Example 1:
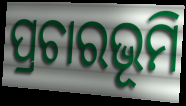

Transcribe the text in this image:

ପ୍ରଚାରଭୂମି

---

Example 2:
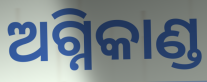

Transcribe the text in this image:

ଅଗ୍ନିକାଣ୍ଡ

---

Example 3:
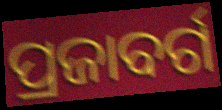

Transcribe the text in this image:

ପ୍ରଜାବର୍ଗ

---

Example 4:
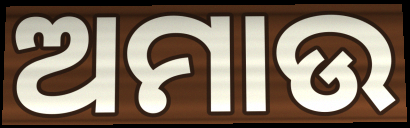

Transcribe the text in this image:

ଅମାଉ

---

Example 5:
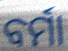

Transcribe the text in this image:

ବର୍ମା